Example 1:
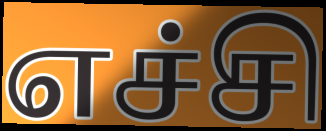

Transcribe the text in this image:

எச்சி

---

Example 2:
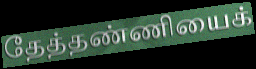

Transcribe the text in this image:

தேத்தண்ணியைக்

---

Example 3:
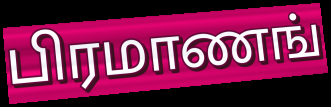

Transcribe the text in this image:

பிரமாணங்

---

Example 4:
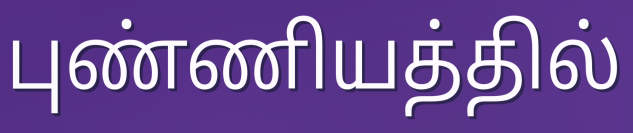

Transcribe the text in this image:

புண்ணியத்தில்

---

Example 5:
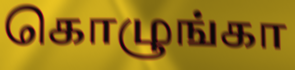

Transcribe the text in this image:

கொழுங்கா